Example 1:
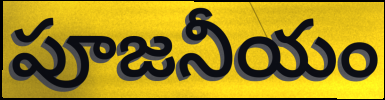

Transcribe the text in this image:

పూజనీయం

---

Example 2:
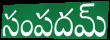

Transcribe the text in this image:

సంపదమ్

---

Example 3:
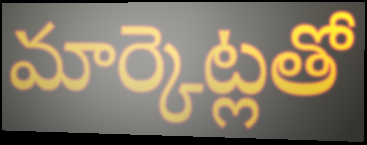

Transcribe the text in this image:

మార్కెట్లతో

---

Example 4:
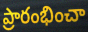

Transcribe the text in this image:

ప్రారంభించా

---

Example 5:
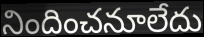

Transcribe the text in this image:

నిందించనూలేదు